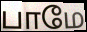
பாமே